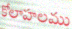
కోలాహలము